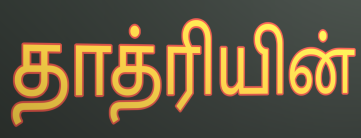
தாத்ரியின்